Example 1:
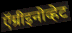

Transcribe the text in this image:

ऍग्रीइनोव्हेट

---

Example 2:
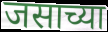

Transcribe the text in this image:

जसाच्या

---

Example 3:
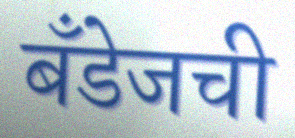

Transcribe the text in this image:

बँडेजची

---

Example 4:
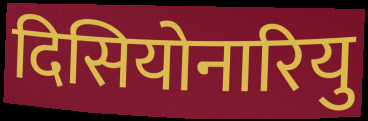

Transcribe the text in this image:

दिसियोनारियु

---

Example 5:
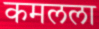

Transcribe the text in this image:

कमलला